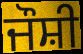
ਜੌਸ਼ੀ